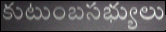
కుటుంబసభ్యులు